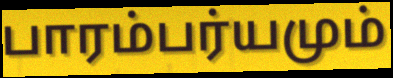
பாரம்பர்யமும்